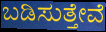
ಬಡಿಸುತ್ತೇವೆ